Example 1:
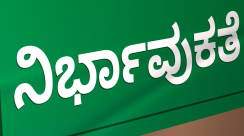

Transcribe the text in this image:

ನಿರ್ಭಾವುಕತೆ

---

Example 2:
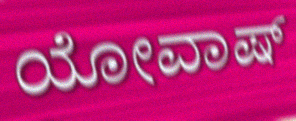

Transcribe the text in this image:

ಯೋವಾಷ್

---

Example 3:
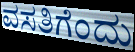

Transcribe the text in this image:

ವಸತಿಗೆಂದು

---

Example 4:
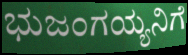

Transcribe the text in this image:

ಭುಜಂಗಯ್ಯನಿಗೆ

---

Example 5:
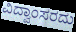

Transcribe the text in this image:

ವಿದ್ವಾಂಸರದು